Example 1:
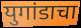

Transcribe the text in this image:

युगांडाचा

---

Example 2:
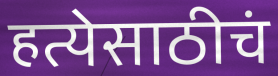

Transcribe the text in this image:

हत्येसाठीचं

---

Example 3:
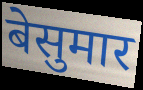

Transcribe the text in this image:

बेसुमार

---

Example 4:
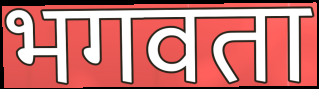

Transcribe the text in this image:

भगवता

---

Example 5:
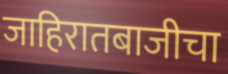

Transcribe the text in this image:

जाहिरातबाजीचा